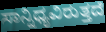
ಸಾನ್ನಿಧ್ಯವಿರುತ್ತದೆ